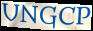
UNGCP